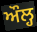
ਔਲ੍ਹ